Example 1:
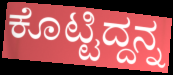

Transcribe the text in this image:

ಕೊಟ್ಟಿದ್ದನ್ನ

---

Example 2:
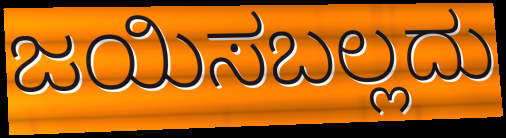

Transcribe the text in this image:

ಜಯಿಸಬಲ್ಲದು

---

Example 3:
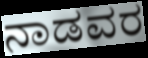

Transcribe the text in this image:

ನಾಡವರ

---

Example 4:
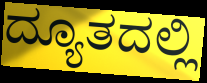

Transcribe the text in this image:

ದ್ಯೂತದಲ್ಲಿ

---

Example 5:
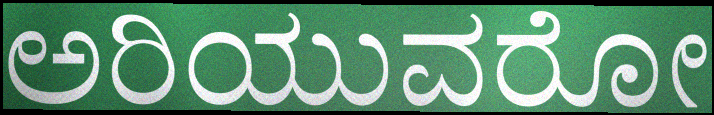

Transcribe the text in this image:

ಅರಿಯುವರೋ